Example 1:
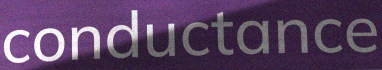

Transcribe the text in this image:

conductance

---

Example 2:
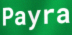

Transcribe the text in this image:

Payra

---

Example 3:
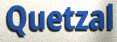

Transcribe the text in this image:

Quetzal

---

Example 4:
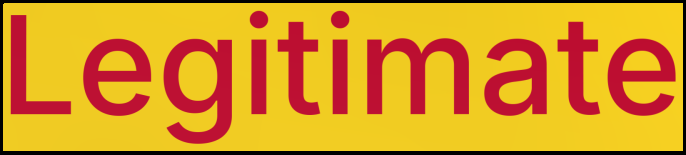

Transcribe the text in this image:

Legitimate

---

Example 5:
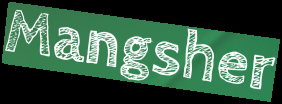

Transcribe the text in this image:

Mangsher